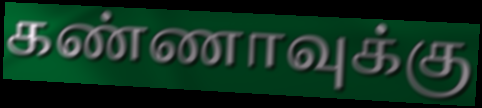
கண்ணாவுக்கு